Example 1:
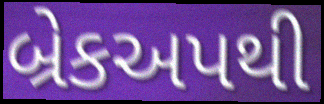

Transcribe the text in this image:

બ્રેકઅપથી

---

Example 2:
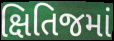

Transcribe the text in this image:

ક્ષિતિજમાં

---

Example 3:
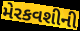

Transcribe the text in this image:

મેરકવશીની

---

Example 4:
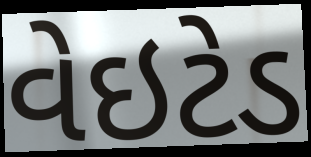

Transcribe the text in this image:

વેઇટેડ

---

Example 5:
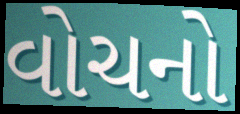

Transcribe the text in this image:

વોચનો